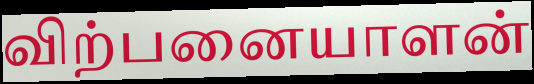
விற்பனையாளன்